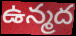
ఉన్మద